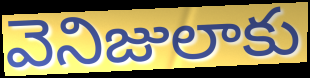
వెనిజులాకు